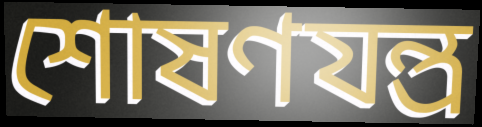
শোষণযন্ত্র